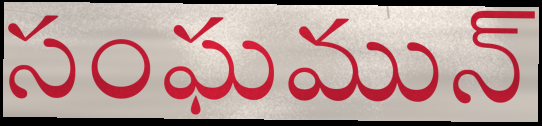
సంఘమున్